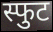
स्फुट